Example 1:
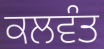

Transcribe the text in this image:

ਕਲਵੰਤ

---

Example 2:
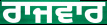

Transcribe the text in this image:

ਰਾਜਵਾਰ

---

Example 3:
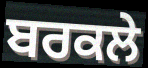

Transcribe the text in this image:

ਬਰਕਲੇ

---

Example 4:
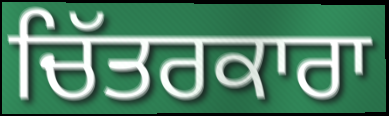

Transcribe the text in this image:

ਚਿੱਤਰਕਾਰਾ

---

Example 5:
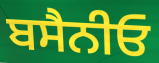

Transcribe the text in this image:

ਬਸੈਨੀਓ